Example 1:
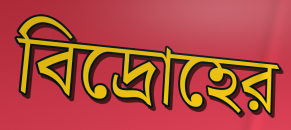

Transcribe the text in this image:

বিদ্রোহের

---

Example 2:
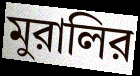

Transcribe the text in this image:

মুরালির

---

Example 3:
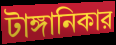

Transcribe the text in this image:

টাঙ্গানিকার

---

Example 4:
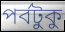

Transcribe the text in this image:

পর্বটুকু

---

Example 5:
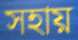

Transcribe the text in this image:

সহায়